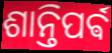
ଶାନ୍ତିପର୍ଵ